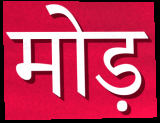
मोड़